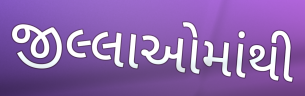
જીલ્લાઓમાંથી